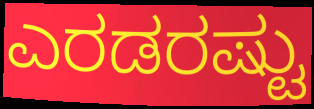
ಎರಡರಷ್ಟು